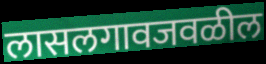
लासलगावजवळील